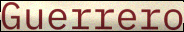
Guerrero